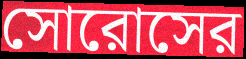
সোরোসের